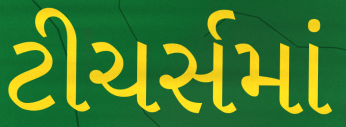
ટીચર્સમાં